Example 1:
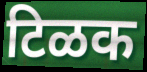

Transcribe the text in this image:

टिळक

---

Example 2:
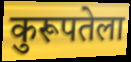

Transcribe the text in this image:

कुरूपतेला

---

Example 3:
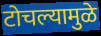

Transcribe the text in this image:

टोचल्यामुळे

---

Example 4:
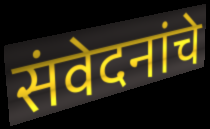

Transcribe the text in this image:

संवेदनांचे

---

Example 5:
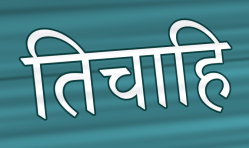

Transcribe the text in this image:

तिचाहि